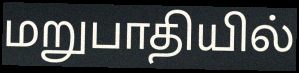
மறுபாதியில்